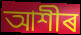
আশীৰ